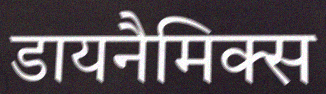
डायनैमिक्‍स